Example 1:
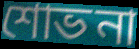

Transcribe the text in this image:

শোভনা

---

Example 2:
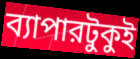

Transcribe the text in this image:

ব্যাপারটুকুই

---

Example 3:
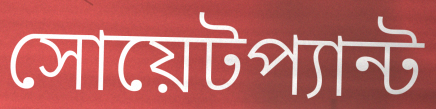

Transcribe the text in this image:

সোয়েটপ্যান্ট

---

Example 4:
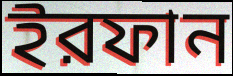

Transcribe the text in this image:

ইরফান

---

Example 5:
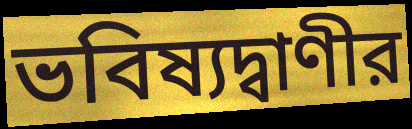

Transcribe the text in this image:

ভবিষ্যদ্বাণীর